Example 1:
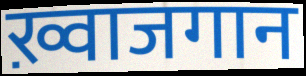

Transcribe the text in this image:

ख़्वाजगान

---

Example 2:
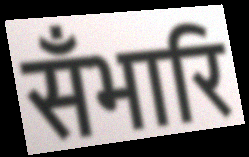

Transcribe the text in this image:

सँभारि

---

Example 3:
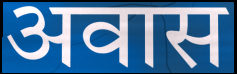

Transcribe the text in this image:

अवास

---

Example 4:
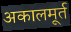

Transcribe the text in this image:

अकालमूर्त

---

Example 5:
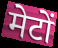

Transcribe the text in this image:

मेटों